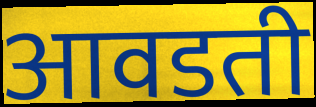
आवडती